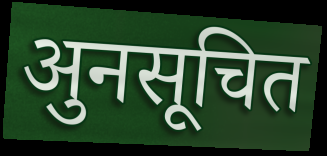
अुनसूचित